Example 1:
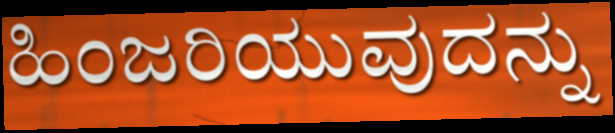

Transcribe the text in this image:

ಹಿಂಜರಿಯುವುದನ್ನು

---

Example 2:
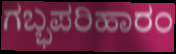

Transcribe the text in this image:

ಗಬ್ಭಪರಿಹಾರಂ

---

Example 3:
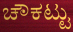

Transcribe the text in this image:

ಚೌಕಟ್ಟು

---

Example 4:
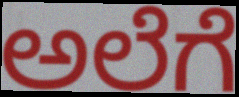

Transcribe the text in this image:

ಅಲೆಗೆ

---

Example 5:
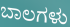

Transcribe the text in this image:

ಬಾಲಗಳು